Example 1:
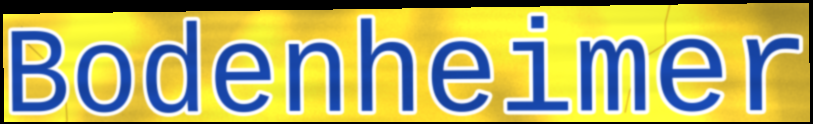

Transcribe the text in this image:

Bodenheimer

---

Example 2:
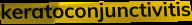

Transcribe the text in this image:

keratoconjunctivitis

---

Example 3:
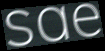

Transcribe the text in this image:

sae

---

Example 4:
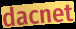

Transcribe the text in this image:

dacnet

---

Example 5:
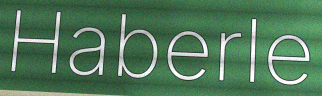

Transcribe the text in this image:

Haberle